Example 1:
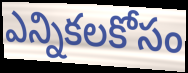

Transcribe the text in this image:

ఎన్నికలకోసం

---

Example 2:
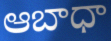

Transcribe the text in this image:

ఆబాధా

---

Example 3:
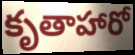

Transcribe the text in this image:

కృతాహారో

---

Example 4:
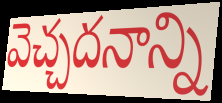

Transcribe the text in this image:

వెచ్చదనాన్ని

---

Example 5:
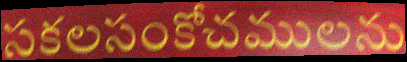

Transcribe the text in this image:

సకలసంకోచములను